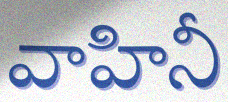
వాహినీ